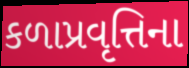
કળાપ્રવૃત્તિના